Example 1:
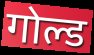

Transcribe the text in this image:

गोल्ड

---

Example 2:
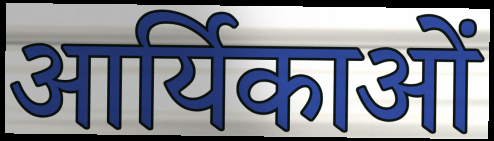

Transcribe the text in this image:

आर्यिकाओं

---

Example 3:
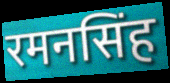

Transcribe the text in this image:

रमनसिंह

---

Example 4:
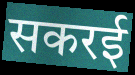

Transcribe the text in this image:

सकरई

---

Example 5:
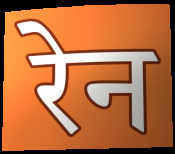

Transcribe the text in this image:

रेन